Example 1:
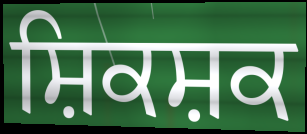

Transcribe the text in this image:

ਸ਼ਿਕਸ਼ਕ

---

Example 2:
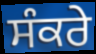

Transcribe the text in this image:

ਸੰਕਰੇ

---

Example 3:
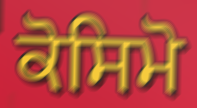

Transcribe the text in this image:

ਕੋਸਿਮੋ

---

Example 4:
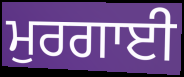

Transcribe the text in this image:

ਮੁਰਗਾਈ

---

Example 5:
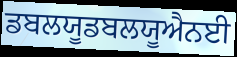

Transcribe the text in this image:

ਡਬਲਯੂਡਬਲਯੂਐਨਈ